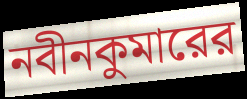
নবীনকুমারের